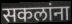
सकलांना